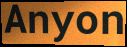
Anyon